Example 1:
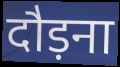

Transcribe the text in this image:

दौड़ना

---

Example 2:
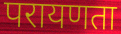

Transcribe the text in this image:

परायणता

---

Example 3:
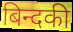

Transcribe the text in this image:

बिन्दकी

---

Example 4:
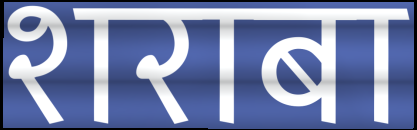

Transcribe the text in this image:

शराबा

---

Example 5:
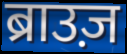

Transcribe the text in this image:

ब्राउज़